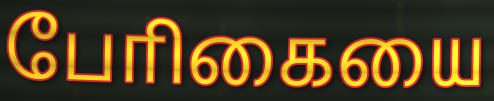
பேரிகையை